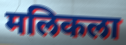
मलिकला